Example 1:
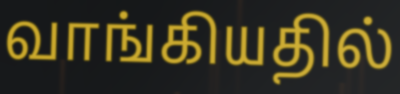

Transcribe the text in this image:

வாங்கியதில்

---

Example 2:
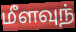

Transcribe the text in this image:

மீளவுந்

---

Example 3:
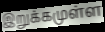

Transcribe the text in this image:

இறுக்கமுள்ள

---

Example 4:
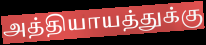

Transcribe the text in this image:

அத்தியாயத்துக்கு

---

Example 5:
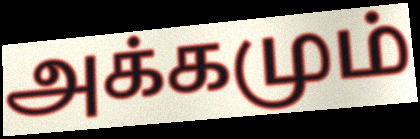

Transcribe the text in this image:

அக்கமும்